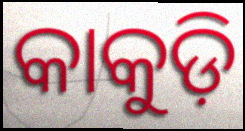
କାକୁଡ଼ି